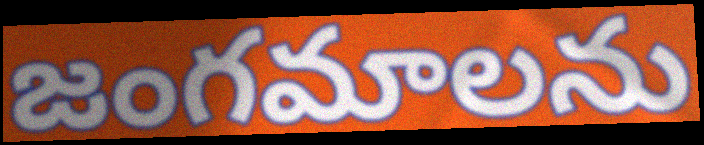
జంగమాలను